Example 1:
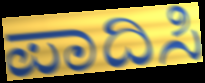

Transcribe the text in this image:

ಪಾದಿಸಿ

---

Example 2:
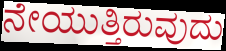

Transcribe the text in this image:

ನೇಯುತ್ತಿರುವುದು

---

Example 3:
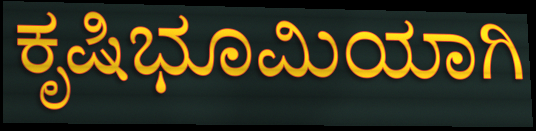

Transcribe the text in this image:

ಕೃಷಿಭೂಮಿಯಾಗಿ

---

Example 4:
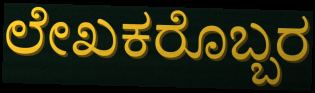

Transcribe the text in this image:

ಲೇಖಕರೊಬ್ಬರ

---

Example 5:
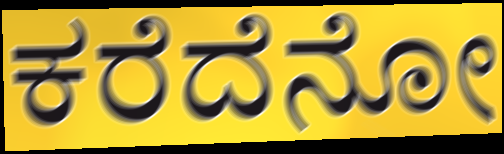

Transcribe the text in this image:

ಕರೆದೆನೋ